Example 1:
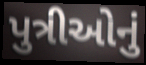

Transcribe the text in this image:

પુત્રીઓનું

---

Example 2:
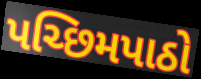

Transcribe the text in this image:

પચ્છિમપાઠો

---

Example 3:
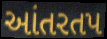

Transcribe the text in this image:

આંતરતપ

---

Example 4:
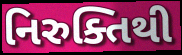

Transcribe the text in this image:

નિરુક્તિથી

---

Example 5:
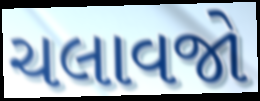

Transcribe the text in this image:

ચલાવજો